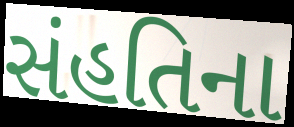
સંહતિના